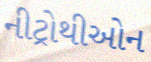
નીટ્રોથીઓન